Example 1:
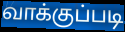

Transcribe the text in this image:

வாக்குப்படி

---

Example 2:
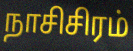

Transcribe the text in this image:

நாசிசிரம்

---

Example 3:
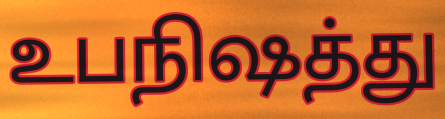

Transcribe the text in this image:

உபநிஷத்து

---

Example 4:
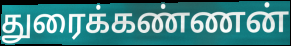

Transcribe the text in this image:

துரைக்கண்ணன்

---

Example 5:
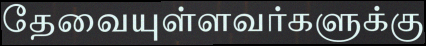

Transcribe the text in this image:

தேவையுள்ளவர்களுக்கு